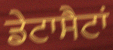
ਡੇਟਾਸੈਟਾਂ